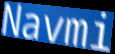
Navmi